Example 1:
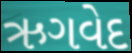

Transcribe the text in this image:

ઋગવેદ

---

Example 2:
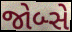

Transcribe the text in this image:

જોબ્સે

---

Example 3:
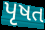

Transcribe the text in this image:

પૃષત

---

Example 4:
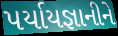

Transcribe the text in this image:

પર્યાયજ્ઞાનીને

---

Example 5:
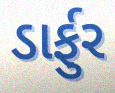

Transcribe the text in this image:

ડાર્ફુર